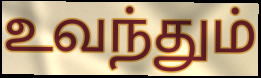
உவந்தும்